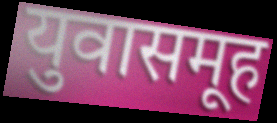
युवासमूह